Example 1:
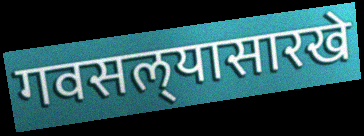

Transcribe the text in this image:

गवसल्यासारखे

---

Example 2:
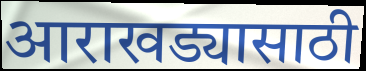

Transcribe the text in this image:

आराखड्यासाठी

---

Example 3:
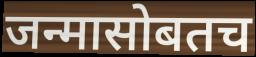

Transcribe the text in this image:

जन्मासोबतच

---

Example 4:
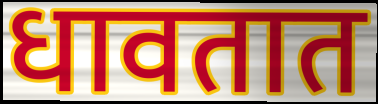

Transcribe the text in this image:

धावतात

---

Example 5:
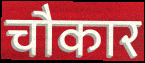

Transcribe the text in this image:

चौकार